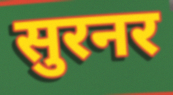
सुरनर